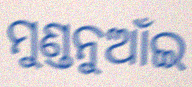
ମୁଣ୍ଡନୁଆଁଇ